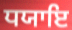
ਧਯਾਇ